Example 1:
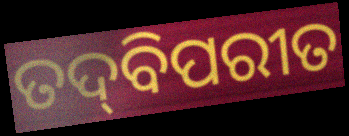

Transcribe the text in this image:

ତଦ୍‍ବିପରୀତ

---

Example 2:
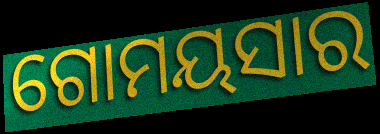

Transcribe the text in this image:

ଗୋମୟସାର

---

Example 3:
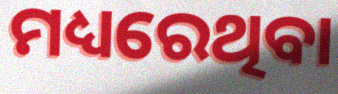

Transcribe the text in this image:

ମଧ୍ୟରେଥିବା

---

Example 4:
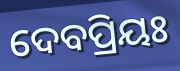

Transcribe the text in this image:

ଦେବପ୍ରିୟଃ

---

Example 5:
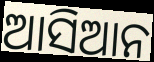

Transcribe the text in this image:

ଆସିଆନ